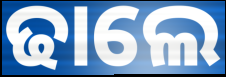
ଢାଲେ